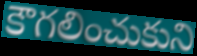
కౌగలించుకుని